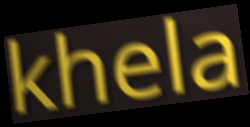
khela